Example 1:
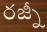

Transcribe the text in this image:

రజ్నీ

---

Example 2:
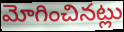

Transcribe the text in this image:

మోగించినట్లు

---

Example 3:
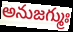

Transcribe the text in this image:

అనుజగ్ముః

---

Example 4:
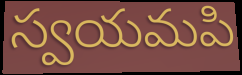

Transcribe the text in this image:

స్వయమపి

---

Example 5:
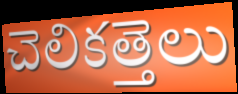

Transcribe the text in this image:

చెలికత్తెలు